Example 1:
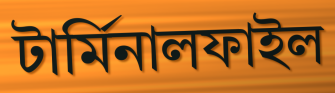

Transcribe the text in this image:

টার্মিনালফাইল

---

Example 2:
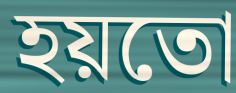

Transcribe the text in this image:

হয়তো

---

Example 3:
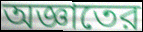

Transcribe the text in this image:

অজ্ঞাতের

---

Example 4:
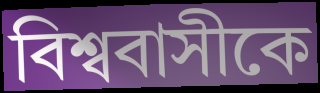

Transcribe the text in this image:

বিশ্ববাসীকে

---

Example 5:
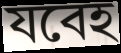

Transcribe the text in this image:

যবেহ